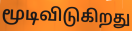
மூடிவிடுகிறது